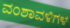
ವಂಶಾವಳಿಗಳ